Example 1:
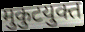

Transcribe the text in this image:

मुकुटयुक्त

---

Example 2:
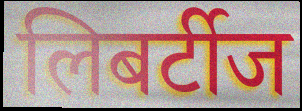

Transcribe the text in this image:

लिबर्टीज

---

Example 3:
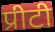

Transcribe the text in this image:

प्रीटी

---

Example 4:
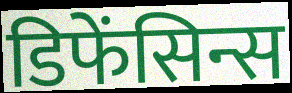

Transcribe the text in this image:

डिफेंसिन्स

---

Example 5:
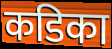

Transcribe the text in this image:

कडिका